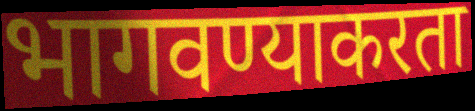
भागवण्याकरता